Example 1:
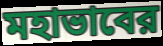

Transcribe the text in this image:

মহাভাবের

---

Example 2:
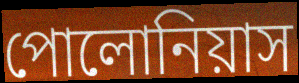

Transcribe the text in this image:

পোলোনিয়াস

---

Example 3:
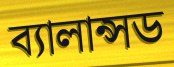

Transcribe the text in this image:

ব্যালান্সড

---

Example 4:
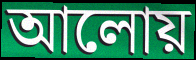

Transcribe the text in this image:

আলোয়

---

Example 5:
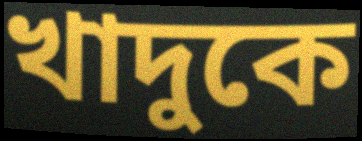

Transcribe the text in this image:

খাদুকে